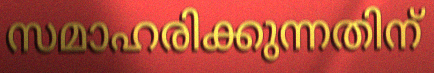
സമാഹരിക്കുന്നതിന്